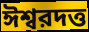
ঈশ্বরদত্ত